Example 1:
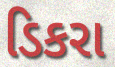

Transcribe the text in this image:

ડિકરા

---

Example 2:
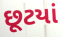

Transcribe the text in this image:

છૂટયાં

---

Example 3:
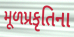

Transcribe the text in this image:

મૂળપ્રકૃતિના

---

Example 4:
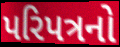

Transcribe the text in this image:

પરિપત્રનો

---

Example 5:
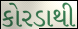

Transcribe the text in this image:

કોરડાથી